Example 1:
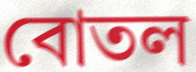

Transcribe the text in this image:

বোতল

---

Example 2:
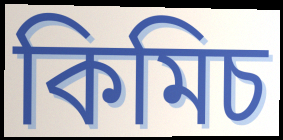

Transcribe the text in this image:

কিমিচ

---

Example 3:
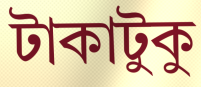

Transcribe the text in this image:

টাকাটুকু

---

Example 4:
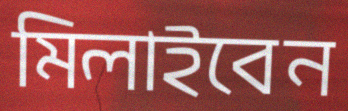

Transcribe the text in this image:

মিলাইবেন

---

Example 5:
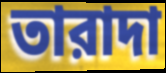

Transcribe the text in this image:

তারাদা